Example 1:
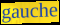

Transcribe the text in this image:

gauche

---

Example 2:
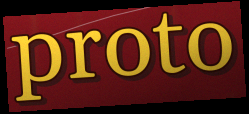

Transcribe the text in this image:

proto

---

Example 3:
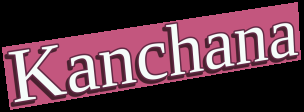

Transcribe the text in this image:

Kanchana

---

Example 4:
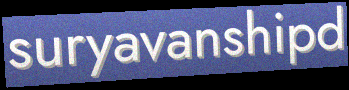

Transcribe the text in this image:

suryavanshipd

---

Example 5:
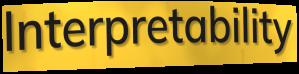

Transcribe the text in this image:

Interpretability